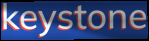
keystone